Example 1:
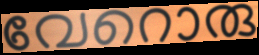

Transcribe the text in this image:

വേറൊരു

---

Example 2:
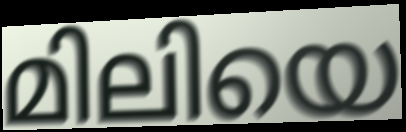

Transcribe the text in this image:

മിലിയെ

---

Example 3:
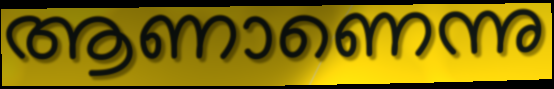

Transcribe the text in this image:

ആണാണെന്നു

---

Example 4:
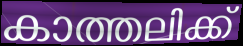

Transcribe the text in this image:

കാത്തലിക്ക്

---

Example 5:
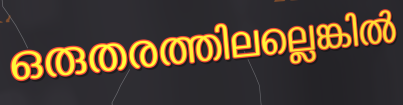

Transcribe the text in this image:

ഒരുതരത്തിലല്ലെങ്കിൽ